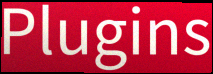
Plugins